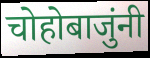
चोहोबाजुंनी